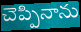
చెప్పినాను